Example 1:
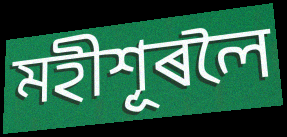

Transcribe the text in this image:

মহীশূৰলৈ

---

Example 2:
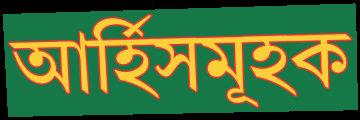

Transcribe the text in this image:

আৰ্হিসমূহক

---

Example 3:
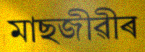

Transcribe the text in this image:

মাছজীৱীৰ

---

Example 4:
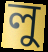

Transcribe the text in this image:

লু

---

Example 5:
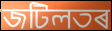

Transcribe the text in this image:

জটিলতৰ